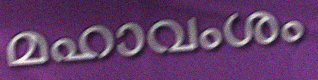
മഹാവംശം